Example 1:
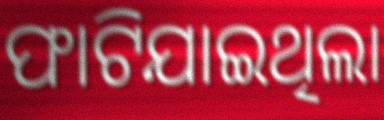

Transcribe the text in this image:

ଫାଟିଯାଇଥିଲା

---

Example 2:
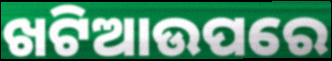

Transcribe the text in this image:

ଖଟିଆଉପରେ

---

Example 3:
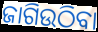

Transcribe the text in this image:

ଜାଗିଉଠିବା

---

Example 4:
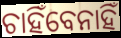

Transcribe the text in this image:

ଚାହିଁବେନାହିଁ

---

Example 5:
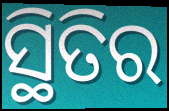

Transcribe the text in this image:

ସ୍ଥିତିର